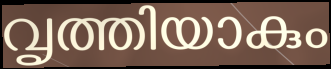
വൃത്തിയാകും